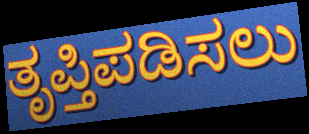
ತೃಪ್ತಿಪಡಿಸಲು